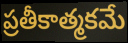
ప్రతీకాత్మకమే